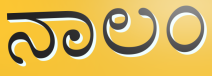
ನಾಲಂ